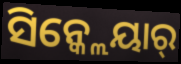
ସିନ୍କ୍ଲେୟାର୍